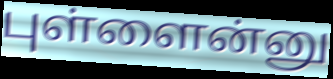
புள்ளைன்னு